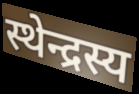
स्थेन्द्रस्य